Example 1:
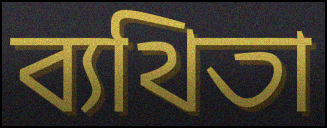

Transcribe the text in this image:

ব্যথিতা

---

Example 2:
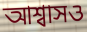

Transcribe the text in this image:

আশ্বাসও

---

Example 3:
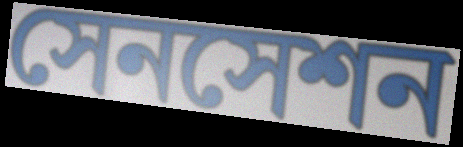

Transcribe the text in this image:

সেনসেশন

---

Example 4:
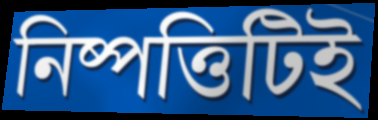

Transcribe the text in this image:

নিষ্পত্তিটিই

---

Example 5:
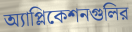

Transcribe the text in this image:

অ্যাপ্লিকেশনগুলির